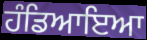
ਹੰਡਿਆਇਆ